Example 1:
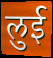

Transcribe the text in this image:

लुई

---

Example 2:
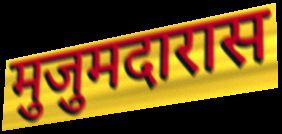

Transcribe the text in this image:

मुजुमदारास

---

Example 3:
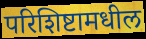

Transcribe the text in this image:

परिशिष्टामधील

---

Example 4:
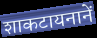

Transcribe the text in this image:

शाकटायनानें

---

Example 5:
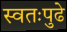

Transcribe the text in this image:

स्वतःपुढे